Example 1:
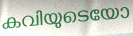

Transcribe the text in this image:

കവിയുടെയോ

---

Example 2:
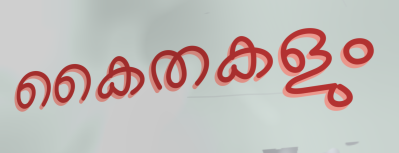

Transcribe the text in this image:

കൈതകളും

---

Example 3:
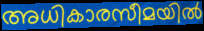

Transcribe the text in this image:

അധികാരസീമയിൽ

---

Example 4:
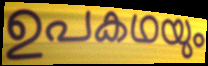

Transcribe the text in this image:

ഉപകഥയും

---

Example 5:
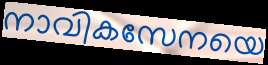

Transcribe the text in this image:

നാവികസേനയെ